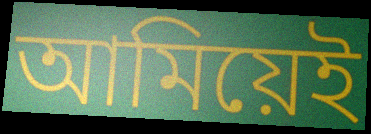
আমিয়েই